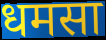
धमसा